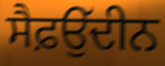
ਸੈਫ਼ਉੱਦੀਨ